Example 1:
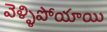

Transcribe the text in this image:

వెళ్ళిపోయాయి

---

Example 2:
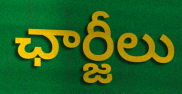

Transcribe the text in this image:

ఛార్జీలు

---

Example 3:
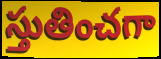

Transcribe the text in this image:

స్తుతించగా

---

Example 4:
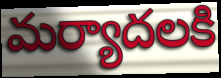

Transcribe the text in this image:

మర్యాదలకి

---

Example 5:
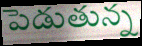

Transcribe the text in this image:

పెడుతున్న